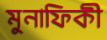
মুনাফিকী